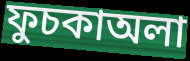
ফুচকাঅলা